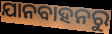
ଯାନବାହନରୁ